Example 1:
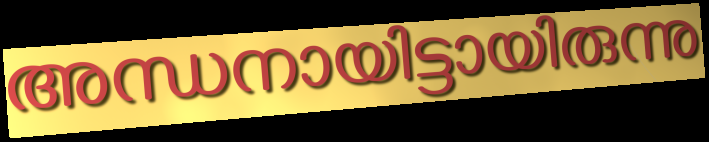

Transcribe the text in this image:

അന്ധനായിട്ടായിരുന്നു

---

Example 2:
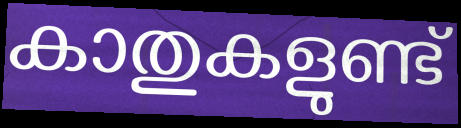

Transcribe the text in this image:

കാതുകളുണ്ട്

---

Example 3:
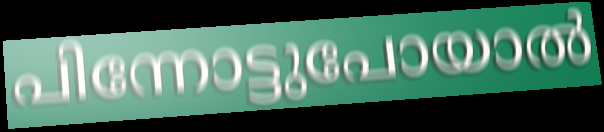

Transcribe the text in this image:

പിന്നോട്ടുപോയാൽ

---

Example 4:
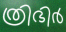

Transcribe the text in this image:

ത്രിഭിർ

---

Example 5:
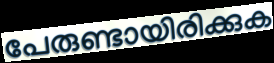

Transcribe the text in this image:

പേരുണ്ടായിരിക്കുക